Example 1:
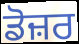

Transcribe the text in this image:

ਡੋਜ਼ਰ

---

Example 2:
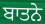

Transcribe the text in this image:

ਬਾਤਨੇ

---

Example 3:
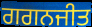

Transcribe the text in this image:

ਗਗਨਜੀਤ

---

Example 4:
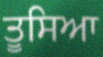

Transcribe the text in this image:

ਤੂਸਿਆ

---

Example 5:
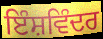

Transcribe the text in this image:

ਇੰਸ਼ਵਿੰਦਰ